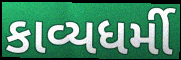
કાવ્યધર્મી